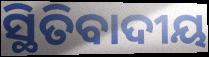
ସ୍ଥିତିବାଦୀୟ